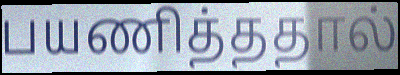
பயணித்ததால்